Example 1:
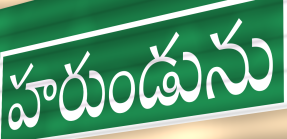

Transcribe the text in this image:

హరుండును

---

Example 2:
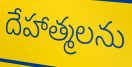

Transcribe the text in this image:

దేహాత్మలను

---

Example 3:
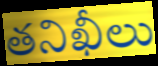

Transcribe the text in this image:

తనిఖీలు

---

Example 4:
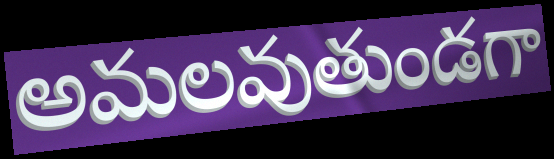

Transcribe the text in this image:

అమలవుతుండగా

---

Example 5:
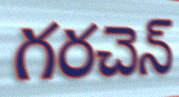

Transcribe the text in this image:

గరచెన్